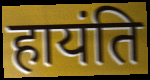
हायंति